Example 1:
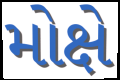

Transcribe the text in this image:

મોક્ષે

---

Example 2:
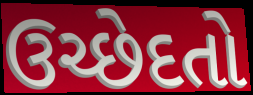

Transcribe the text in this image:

ઉચ્છેદતો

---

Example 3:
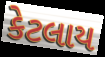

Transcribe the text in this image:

કેટલાય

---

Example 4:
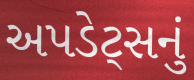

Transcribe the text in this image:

અપડેટ્સનું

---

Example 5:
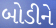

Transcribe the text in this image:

બોડીને